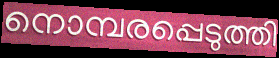
നൊമ്പരപ്പെടുത്തി